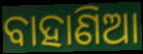
ବାହାଣିଆ